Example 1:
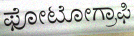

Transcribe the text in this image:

ಫೋಟೋಗ್ರಾಫಿ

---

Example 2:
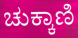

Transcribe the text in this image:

ಚುಕ್ಕಾಣಿ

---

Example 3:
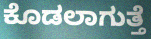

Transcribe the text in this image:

ಕೊಡಲಾಗುತ್ತೆ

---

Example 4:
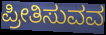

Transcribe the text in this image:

ಪ್ರೀತಿಸುವವ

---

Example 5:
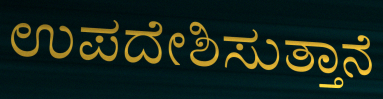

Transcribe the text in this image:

ಉಪದೇಶಿಸುತ್ತಾನೆ